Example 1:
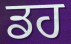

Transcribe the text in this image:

ਡਹ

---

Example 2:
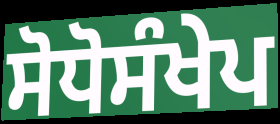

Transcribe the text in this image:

ਸੋਧੋਸੰਖੇਪ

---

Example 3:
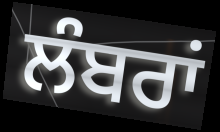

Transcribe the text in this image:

ਲੰਬਰਾਂ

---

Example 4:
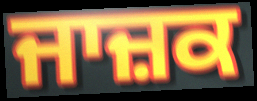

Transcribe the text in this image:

ਜਾਜ਼ਕ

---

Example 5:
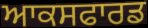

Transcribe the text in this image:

ਆਕਸਫਾਰਡ